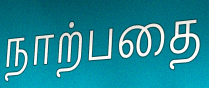
நாற்பதை